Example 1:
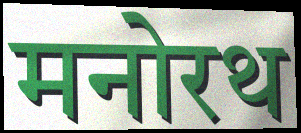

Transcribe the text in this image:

मनोरथ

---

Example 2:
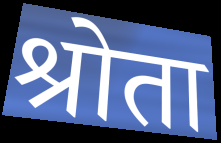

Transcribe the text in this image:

श्रोता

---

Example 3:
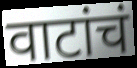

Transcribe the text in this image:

वाटांचं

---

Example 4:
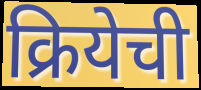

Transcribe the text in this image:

क्रियेची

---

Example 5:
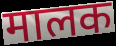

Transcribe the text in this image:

मालक